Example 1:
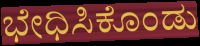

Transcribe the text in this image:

ಭೇಧಿಸಿಕೊಂಡು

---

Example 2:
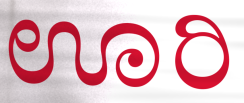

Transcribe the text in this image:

ಊರಿ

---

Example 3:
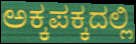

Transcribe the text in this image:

ಅಕ್ಕಪಕ್ಕದಲ್ಲಿ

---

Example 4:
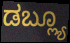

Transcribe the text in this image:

ಡಬ್ಲ್ಯೂ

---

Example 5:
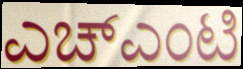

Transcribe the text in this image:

ಎಚ್ಎಂಟಿ